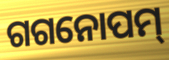
ଗଗନୋପମ୍